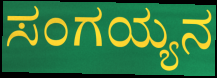
ಸಂಗಯ್ಯನ